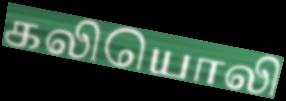
கலியொலி